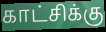
காட்சிக்கு